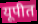
यूपीत